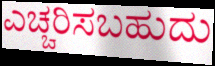
ಎಚ್ಚರಿಸಬಹುದು